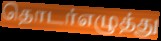
தொடர்எழுத்து